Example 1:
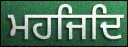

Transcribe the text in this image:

ਮਹਜਿਦਿ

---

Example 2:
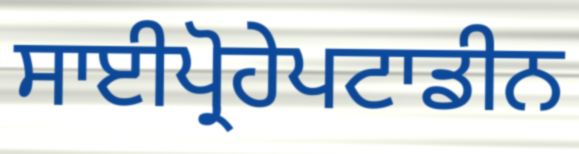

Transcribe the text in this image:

ਸਾਈਪ੍ਰੋਹੇਪਟਾਡੀਨ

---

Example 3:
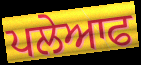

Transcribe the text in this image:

ਪਲੇਆਫ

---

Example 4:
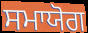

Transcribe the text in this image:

ਸਮਾਯੋਗ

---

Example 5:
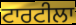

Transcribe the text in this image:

ਟਾਰਟੀਲਾ